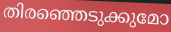
തിരഞ്ഞെടുക്കുമോ